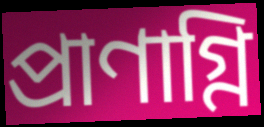
প্রাণাগ্নি